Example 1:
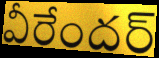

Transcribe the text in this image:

వీరేందర్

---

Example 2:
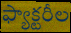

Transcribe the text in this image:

ఫ్యాక్టరీల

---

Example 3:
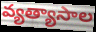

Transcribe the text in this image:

వ్యత్యాసాల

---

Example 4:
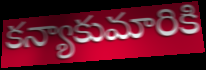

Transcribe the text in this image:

కన్యాకుమారికి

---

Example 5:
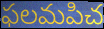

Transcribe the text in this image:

ఫలమపిచ